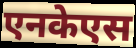
एनकेएस